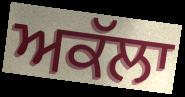
ਅਕੱਲਾ